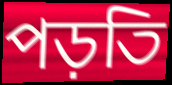
পড়তি